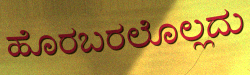
ಹೊರಬರಲೊಲ್ಲದು